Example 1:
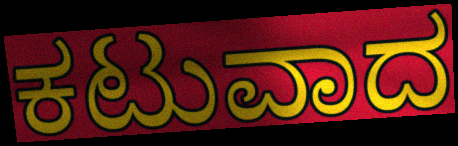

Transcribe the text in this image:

ಕಟುವಾದ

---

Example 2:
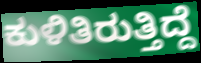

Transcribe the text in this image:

ಕುಳಿತಿರುತ್ತಿದ್ದೆ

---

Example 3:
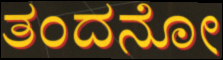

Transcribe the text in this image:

ತಂದನೋ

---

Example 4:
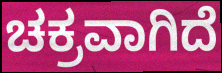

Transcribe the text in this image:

ಚಕ್ರವಾಗಿದೆ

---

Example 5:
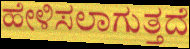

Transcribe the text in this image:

ಹೇಳಿಸಲಾಗುತ್ತದೆ